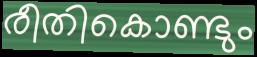
രീതികൊണ്ടും